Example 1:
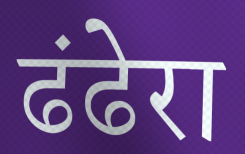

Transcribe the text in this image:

ढंढेरा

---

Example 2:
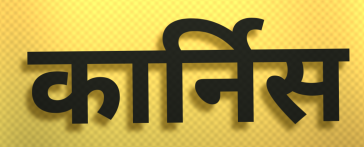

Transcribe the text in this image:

कार्निस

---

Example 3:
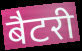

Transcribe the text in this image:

बैटरी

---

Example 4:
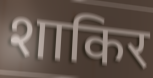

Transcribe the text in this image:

शाकिर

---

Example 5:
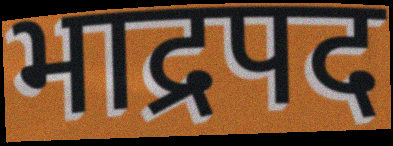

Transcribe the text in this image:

भाद्रपद